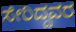
ಸೇರಿದ್ದವರ